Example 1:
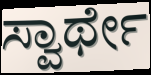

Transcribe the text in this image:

ಸ್ವಾರ್ಥೇ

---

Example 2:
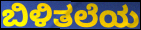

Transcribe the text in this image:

ಬಿಳಿತಲೆಯ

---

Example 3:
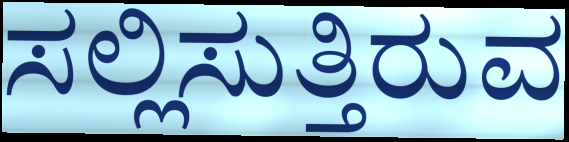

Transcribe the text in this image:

ಸಲ್ಲಿಸುತ್ತಿರುವ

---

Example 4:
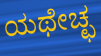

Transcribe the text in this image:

ಯಥೇಚ್ಛ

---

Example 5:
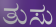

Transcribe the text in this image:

ತುಸು